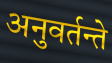
अनुवर्तन्ते